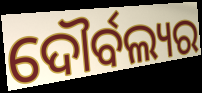
ଦୌର୍ବଲ୍ୟର